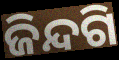
ଜିନ୍ଦଗି